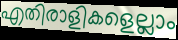
എതിരാളികളെല്ലാം